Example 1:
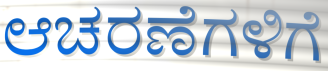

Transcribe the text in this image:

ಆಚರಣೆಗಳಿಗೆ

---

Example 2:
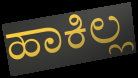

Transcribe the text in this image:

ಹಾಕಿಲ್ಲ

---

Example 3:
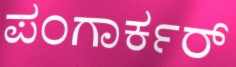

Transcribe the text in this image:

ಪಂಗಾರ್ಕರ್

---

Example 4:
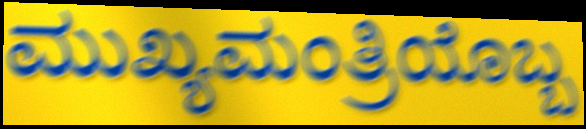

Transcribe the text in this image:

ಮುಖ್ಯಮಂತ್ರಿಯೊಬ್ಬ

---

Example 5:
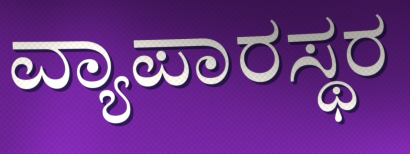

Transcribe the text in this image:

ವ್ಯಾಪಾರಸ್ಥರ